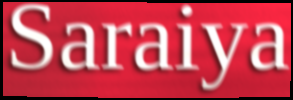
Saraiya